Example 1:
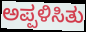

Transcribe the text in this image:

ಅಪ್ಪಳಿಸಿತು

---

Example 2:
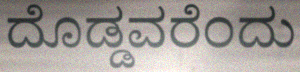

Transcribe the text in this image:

ದೊಡ್ಡವರೆಂದು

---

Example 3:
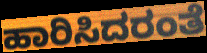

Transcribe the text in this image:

ಹಾರಿಸಿದರಂತೆ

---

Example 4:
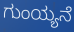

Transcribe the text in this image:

ಗುಂಯ್ಯನೆ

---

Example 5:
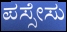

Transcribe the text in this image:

ಪಸ್ಸೇಸು